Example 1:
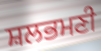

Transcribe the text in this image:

ਸ਼ਲਭਮਣੀ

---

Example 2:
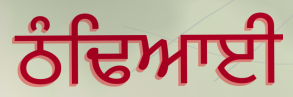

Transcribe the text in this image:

ਠੰਢਿਆਈ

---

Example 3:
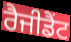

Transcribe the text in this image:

ਰੈਜੀਡੈਂਟ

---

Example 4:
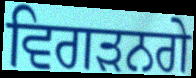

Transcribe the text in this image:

ਵਿਗੜਨਗੇ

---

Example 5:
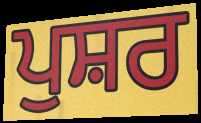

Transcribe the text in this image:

ਪੁਸ਼ਰ